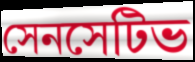
সেনসেটিভ